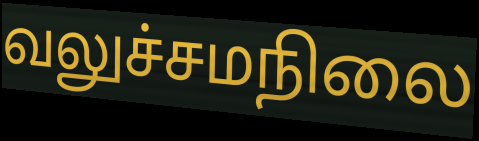
வலுச்சமநிலை